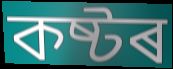
কষ্টৰ